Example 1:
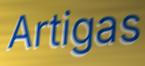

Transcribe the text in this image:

Artigas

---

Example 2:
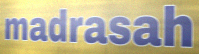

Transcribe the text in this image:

madrasah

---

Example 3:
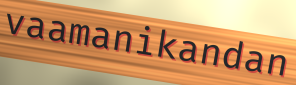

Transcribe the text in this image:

vaamanikandan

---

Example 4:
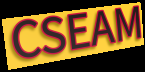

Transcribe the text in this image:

CSEAM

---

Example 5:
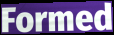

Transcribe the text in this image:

Formed